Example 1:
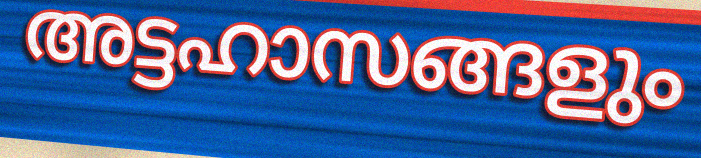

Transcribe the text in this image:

അട്ടഹാസങ്ങളും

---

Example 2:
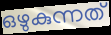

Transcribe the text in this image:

ഒഴുകുന്നത്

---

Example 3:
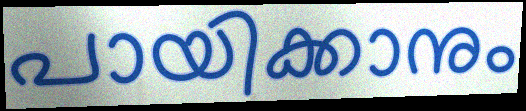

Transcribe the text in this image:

പായിക്കാനും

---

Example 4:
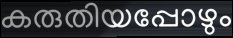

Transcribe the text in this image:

കരുതിയപ്പോഴും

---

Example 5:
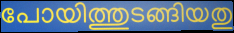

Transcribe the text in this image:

പോയിത്തുടങ്ങിയതു